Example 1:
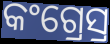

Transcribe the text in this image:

କଂଗ୍ରେସ୍ର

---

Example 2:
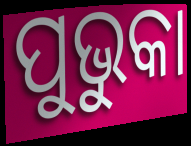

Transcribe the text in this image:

ପୁଭୁକା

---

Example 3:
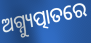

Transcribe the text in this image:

ଅଗ୍ନ୍ୟୁତ୍ପାତରେ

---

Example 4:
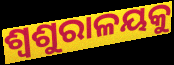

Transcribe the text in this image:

ଶ୍ୱଶୁରାଳୟକୁ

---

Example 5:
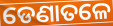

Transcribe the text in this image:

ଡେଣାତଳେ